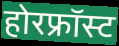
होरफ्रॉस्ट